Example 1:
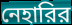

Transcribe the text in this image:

নেহারির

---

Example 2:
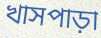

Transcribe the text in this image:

খাসপাড়া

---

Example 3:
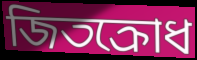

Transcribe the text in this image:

জিতক্রোধ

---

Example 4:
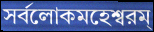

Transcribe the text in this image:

সর্বলোকমহেশ্বরম্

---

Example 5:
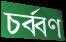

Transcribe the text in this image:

চর্ব্বণ